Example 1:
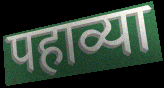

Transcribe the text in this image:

पहाव्या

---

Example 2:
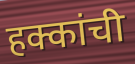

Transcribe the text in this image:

हक्कांची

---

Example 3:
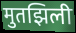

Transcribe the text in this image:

मुतझिली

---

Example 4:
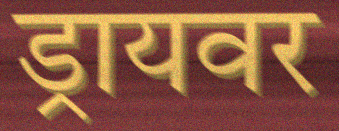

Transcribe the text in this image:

ड्रायवर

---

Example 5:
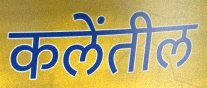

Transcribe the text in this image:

कलेंतील